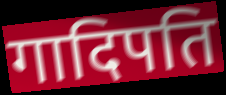
गादिपति